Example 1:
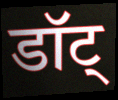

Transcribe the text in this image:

डॉट्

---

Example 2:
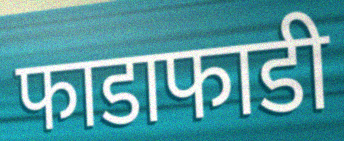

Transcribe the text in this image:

फाडाफाडी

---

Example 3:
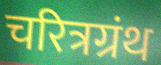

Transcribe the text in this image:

चरित्रग्रंथ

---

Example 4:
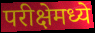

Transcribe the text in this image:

परीक्षेमध्ये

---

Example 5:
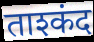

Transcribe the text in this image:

ताश्कंद